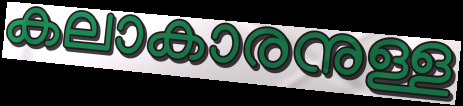
കലാകാരനുള്ള